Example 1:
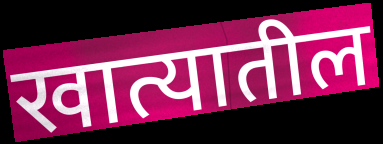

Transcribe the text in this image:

खात्यातील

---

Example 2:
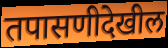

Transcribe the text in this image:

तपासणीदेखील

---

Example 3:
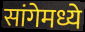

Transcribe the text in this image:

सांगेमध्ये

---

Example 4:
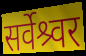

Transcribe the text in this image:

सर्वेश्र्वर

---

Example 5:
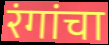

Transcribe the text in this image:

रंगांचा